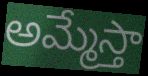
అమ్మేస్తా